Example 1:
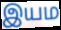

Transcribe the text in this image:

இயம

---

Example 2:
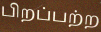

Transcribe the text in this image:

பிறப்பற்ற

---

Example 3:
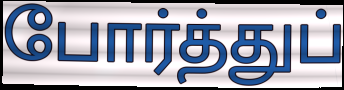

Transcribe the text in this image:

போர்த்துப்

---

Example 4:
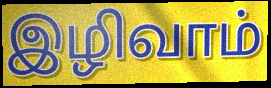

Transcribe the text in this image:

இழிவாம்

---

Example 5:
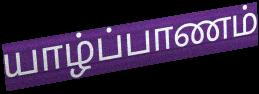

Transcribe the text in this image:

யாழ்ப்பாணம்